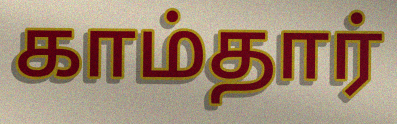
காம்தார்